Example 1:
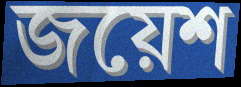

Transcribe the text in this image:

জয়েশ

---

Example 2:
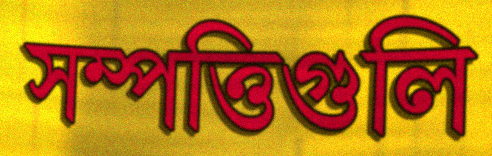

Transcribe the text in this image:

সম্পত্তিগুলি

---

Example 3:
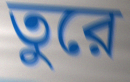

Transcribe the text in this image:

তুরে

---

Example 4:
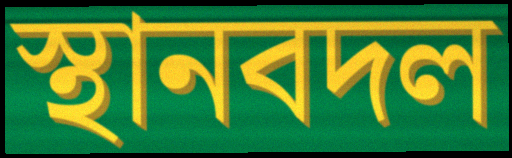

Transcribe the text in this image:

স্থানবদল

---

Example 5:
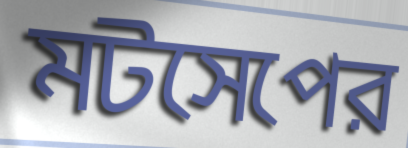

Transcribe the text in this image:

মটসেপের